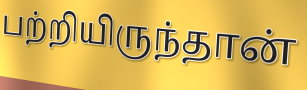
பற்றியிருந்தான்